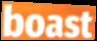
boast